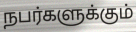
நபர்களுக்கும்